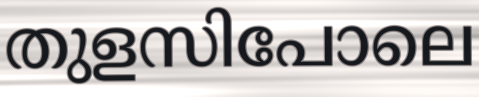
തുളസിപോലെ